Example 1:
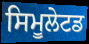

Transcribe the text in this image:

ਸਿਮੂਲੇਟਡ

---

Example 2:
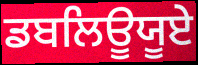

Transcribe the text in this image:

ਡਬਲਿਊਯੂਏ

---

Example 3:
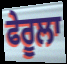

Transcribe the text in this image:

ਫੇਰੂਲਾ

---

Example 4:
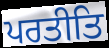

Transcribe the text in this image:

ਪਰਤੀਤਿ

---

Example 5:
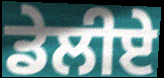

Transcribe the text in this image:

ਡੇਲੀਏ